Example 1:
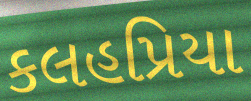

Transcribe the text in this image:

કલહપ્રિયા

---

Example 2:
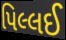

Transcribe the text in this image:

પિલ્લઈ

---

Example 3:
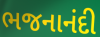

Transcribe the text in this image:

ભજનાનંદી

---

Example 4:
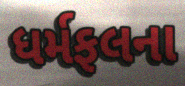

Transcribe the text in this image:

ધર્મફલના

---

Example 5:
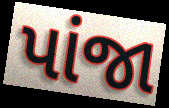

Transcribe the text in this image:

પાંજા